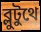
ব্লুটুথে